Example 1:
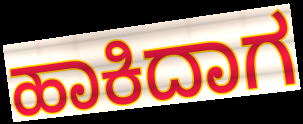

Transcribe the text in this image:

ಹಾಕಿದಾಗ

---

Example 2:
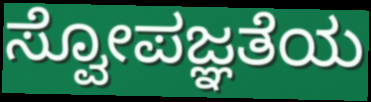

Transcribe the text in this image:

ಸ್ವೋಪಜ್ಞತೆಯ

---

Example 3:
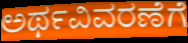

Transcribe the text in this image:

ಅರ್ಥವಿವರಣೆಗೆ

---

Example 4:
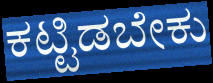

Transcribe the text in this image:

ಕಟ್ಟಿಡಬೇಕು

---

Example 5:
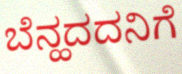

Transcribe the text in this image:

ಬೆನ್ಹದದನಿಗೆ